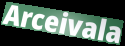
Arceivala